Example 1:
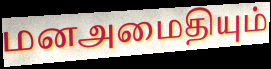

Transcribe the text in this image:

மனஅமைதியும்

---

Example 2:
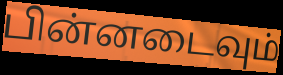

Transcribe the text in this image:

பின்னடைவும்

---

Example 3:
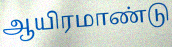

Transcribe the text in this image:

ஆயிரமாண்டு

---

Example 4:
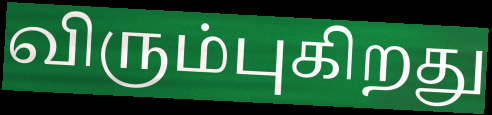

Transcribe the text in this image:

விரும்புகிறது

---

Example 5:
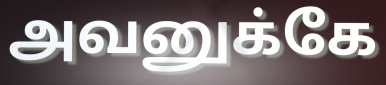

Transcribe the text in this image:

அவனுக்கே